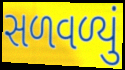
સળવળ્યું